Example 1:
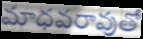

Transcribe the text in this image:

మాధవరావుతో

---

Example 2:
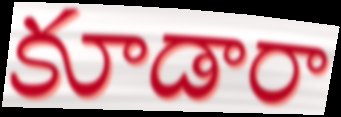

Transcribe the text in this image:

కూడారా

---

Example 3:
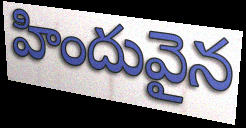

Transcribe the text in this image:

హిందువైన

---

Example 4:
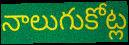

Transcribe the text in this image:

నాలుగుకోట్ల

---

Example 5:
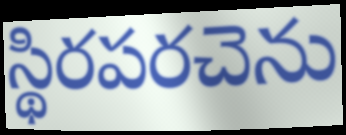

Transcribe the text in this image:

స్థిరపరచెను